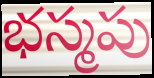
భస్మపు